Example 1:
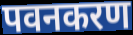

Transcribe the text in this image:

पवनकरण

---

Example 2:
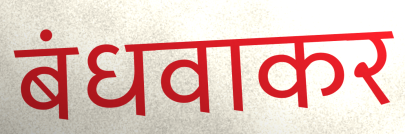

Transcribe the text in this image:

बंधवाकर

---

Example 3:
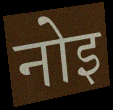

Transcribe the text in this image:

नोइ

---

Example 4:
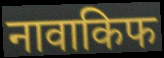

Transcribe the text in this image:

नावाकिफ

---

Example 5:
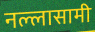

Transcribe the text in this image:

नल्लासामी